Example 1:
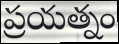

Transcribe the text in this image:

ప్రయత్నం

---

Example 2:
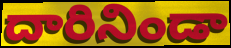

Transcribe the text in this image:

దారినిండా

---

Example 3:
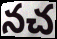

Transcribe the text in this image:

నచ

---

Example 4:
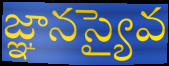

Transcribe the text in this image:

జ్ఞానస్యైవ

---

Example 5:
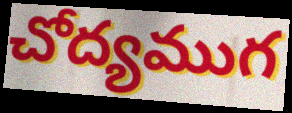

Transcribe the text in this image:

చోద్యముగ